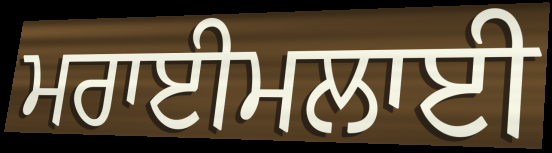
ਮਰਾਈਮਲਾਈ